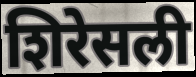
शिरेसली